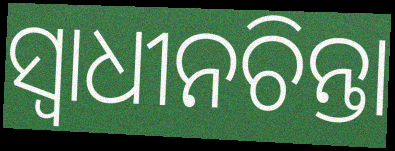
ସ୍ଵାଧୀନଚିନ୍ତା